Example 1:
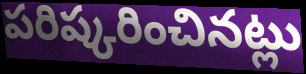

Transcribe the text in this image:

పరిష్కరించినట్లు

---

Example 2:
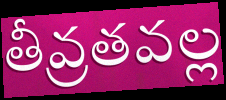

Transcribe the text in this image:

తీవ్రతవల్ల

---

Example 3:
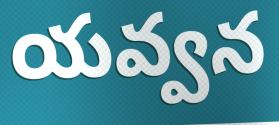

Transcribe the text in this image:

యవ్వన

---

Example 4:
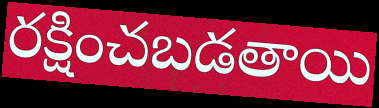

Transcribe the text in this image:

రక్షించబడతాయి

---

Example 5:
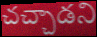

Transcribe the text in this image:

చచ్చాడని